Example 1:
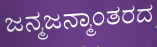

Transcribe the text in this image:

ಜನ್ಮಜನ್ಮಾಂತರದ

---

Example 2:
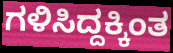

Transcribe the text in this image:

ಗಳಿಸಿದ್ದಕ್ಕಿಂತ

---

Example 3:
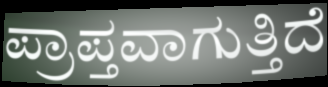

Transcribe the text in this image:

ಪ್ರಾಪ್ತವಾಗುತ್ತಿದೆ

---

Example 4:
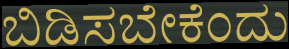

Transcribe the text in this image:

ಬಿಡಿಸಬೇಕೆಂದು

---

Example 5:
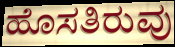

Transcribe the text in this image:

ಹೊಸತಿರುವು